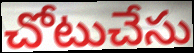
చోటుచేసు